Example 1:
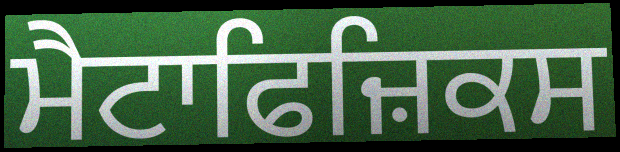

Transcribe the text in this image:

ਮੈਟਾਫਿਜ਼ਿਕਸ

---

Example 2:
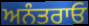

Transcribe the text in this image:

ਅਨੰਤਰਾਓ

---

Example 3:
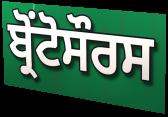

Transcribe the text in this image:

ਬ੍ਰੋਂਟੋਸੌਰਸ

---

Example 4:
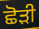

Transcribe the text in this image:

ਛੋੜੀ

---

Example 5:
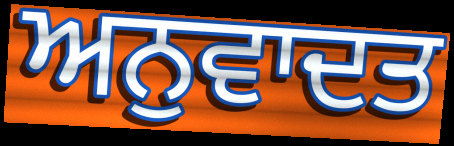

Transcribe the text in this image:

ਅਨੁਵਾਦਤ